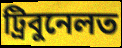
ট্ৰিবুনেলত